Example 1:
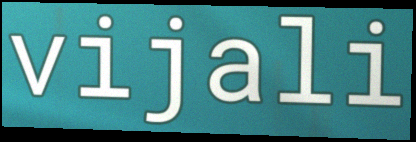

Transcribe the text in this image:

vijali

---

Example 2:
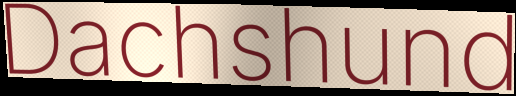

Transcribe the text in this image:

Dachshund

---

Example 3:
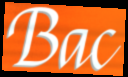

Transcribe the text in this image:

Bac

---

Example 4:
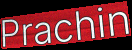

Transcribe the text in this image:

Prachin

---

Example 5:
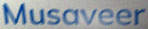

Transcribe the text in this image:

Musaveer